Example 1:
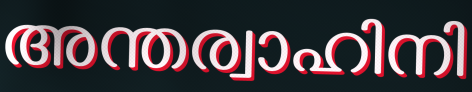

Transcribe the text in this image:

അന്തര്വാഹിനി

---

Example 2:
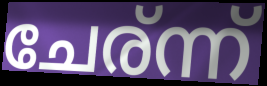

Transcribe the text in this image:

ചേര്ന്ന്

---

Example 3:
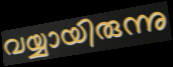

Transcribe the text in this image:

വയ്യായിരുന്നു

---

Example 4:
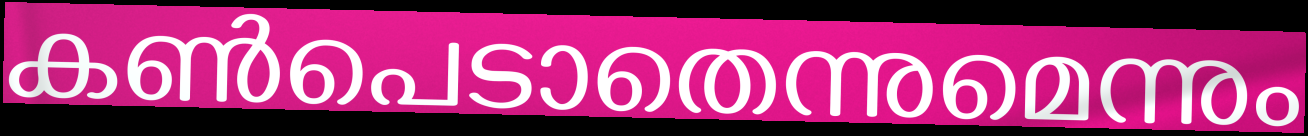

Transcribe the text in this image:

കൺപെടാതെന്നുമെന്നും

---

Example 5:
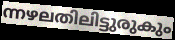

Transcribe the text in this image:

ന്നഴലതിലിട്ടുരുകും